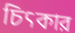
চিৎকার